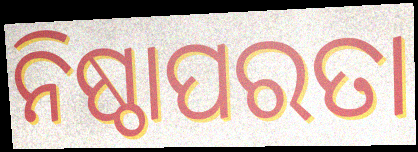
ନିଷ୍ଠାପରତା